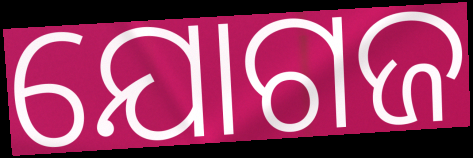
ଯୋଗଜ